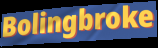
Bolingbroke